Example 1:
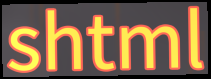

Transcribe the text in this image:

shtml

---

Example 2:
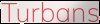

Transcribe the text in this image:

Turbans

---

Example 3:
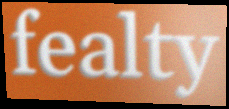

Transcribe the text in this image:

fealty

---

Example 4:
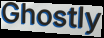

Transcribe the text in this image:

Ghostly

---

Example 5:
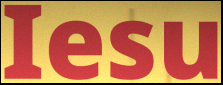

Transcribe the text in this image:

Iesu